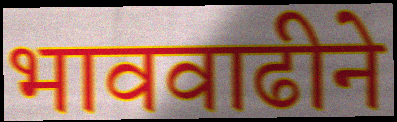
भाववाढीने